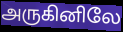
அருகினிலே